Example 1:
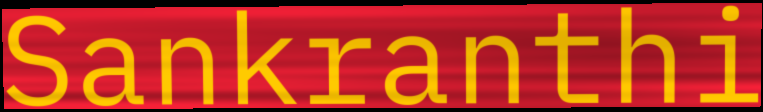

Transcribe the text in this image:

Sankranthi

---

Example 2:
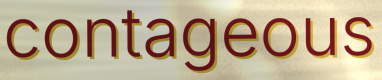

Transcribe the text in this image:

contageous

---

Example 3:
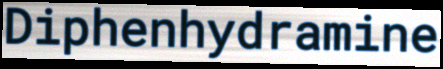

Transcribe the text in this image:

Diphenhydramine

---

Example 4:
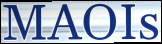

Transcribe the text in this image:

MAOIs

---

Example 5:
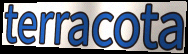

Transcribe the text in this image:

terracota